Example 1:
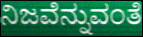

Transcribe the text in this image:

ನಿಜವೆನ್ನುವಂತೆ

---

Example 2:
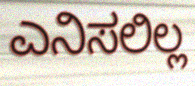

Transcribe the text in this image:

ಎನಿಸಲಿಲ್ಲ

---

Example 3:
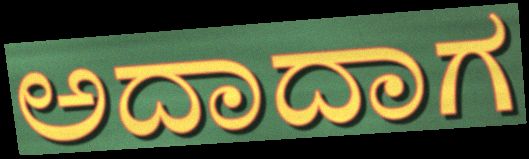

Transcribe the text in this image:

ಅದಾದಾಗ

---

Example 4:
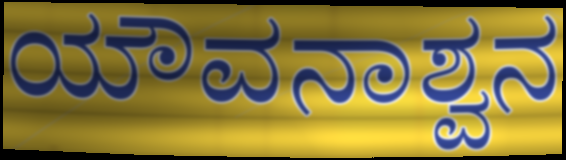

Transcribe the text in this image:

ಯೌವನಾಶ್ವನ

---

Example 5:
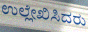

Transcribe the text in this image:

ಉಲ್ಲೇಖಿಸಿದರು